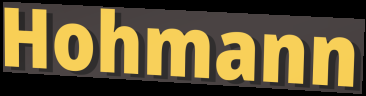
Hohmann